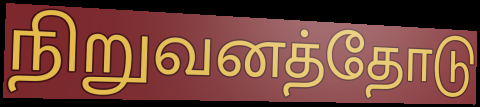
நிறுவனத்தோடு